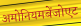
अमोनियमबेंजोएट